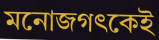
মনোজগৎকেই